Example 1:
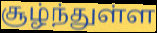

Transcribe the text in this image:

சூழ்ந்துள்ள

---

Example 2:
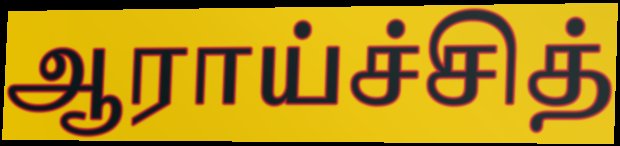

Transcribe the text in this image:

ஆராய்ச்சித்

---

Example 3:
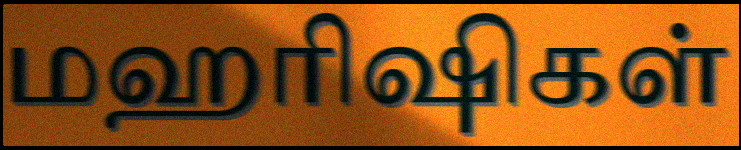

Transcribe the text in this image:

மஹரிஷிகள்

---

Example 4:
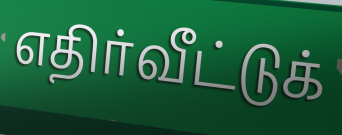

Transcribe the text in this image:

எதிர்வீட்டுக்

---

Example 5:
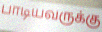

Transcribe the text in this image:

பாடியவருக்கு